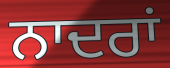
ਨਾਦਰਾਂ